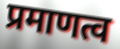
प्रमाणत्व